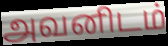
அவனிடம்